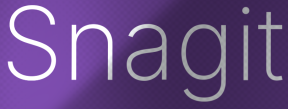
Snagit